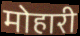
मोहारी